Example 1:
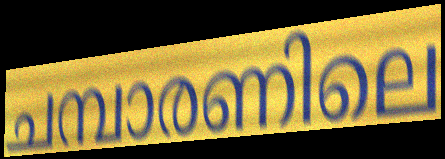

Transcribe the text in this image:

ചമ്പാരണിലെ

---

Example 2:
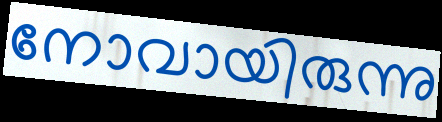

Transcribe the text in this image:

നോവായിരുന്നു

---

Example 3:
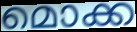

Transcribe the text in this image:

മൊക്ക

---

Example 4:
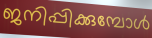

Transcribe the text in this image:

ജനിപ്പിക്കുമ്പോൾ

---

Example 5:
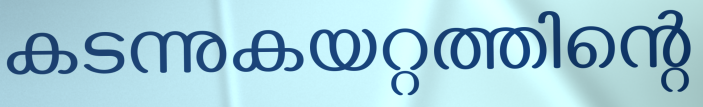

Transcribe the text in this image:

കടന്നുകയറ്റത്തിന്റെ